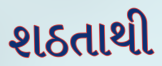
શઠતાથી